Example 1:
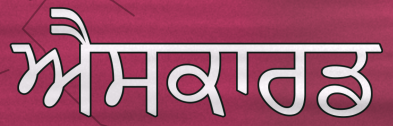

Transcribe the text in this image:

ਐਸਕਾਰਡ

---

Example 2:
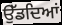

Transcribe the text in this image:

ਉੱਡਦਿਆਂ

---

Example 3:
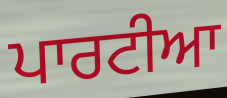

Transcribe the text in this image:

ਪਾਰਟੀਆ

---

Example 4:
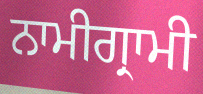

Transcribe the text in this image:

ਨਾਮੀਗ੍ਰਾਮੀ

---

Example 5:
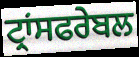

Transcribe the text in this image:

ਟ੍ਰਾਂਸਫਰੇਬਲ